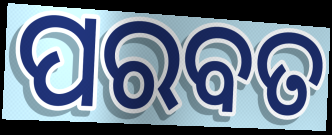
ପରବତ